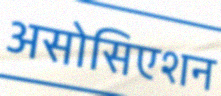
असोसिएशन